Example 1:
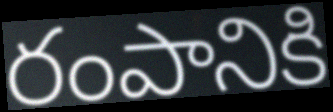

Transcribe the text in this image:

రంపానికి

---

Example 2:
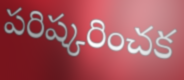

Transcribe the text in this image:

పరిష్కరించక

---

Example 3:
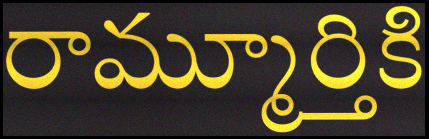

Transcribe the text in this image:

రామ్మూర్తికి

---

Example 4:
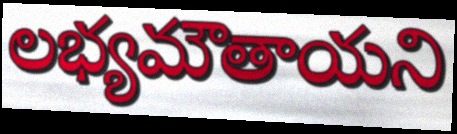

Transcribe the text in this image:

లభ్యమౌతాయని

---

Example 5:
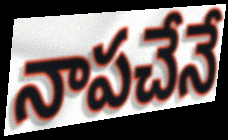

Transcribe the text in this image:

నాపచేనే